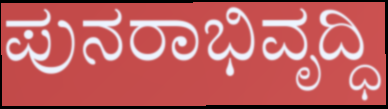
ಪುನರಾಭಿವೃದ್ಧಿ